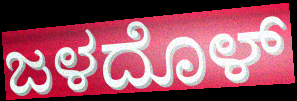
ಜಳದೊಳ್